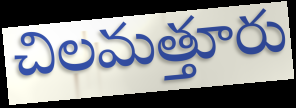
చిలమత్తూరు